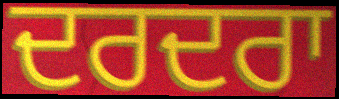
ਦਰਦਰਾ